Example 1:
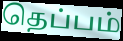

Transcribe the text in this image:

தெப்பம்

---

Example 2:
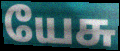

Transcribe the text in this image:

யேசு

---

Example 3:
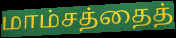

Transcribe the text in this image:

மாம்சத்தைத்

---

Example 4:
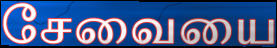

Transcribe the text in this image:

சேவையை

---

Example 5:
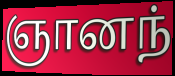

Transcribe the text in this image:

ஞானந்